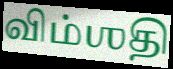
விம்ஶதி